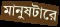
মানুষটারে